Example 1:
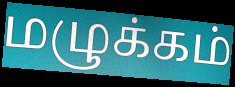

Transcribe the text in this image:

மழுக்கம்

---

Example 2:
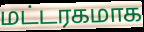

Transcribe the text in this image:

மட்டரகமாக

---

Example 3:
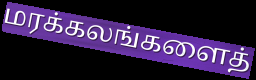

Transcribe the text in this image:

மரக்கலங்களைத்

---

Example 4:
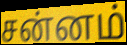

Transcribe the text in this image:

சன்னம்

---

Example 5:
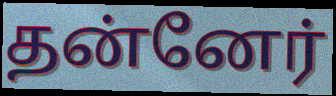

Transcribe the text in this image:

தன்னேர்